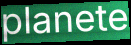
planete